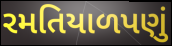
રમતિયાળપણું